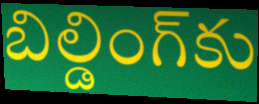
బిల్డింగ్‌కు